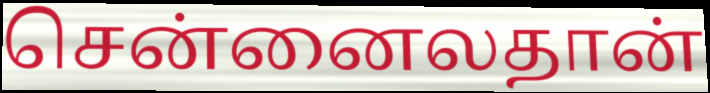
சென்னைலதான்